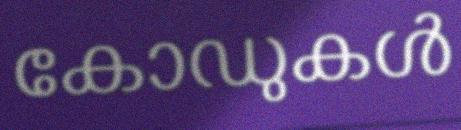
കോഡുകൾ